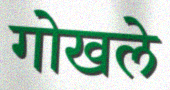
गोखले